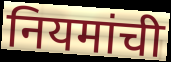
नियमांची